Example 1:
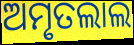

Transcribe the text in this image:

ଅମୃତଲାଲ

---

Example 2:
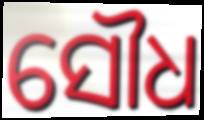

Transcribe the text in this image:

ସୌଧ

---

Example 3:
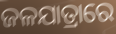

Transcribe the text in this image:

ଜଳଯାତ୍ରାରେ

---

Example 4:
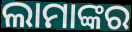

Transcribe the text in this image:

ଲାମାଙ୍କର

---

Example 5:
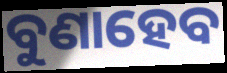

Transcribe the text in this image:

ବୁଣାହେବ